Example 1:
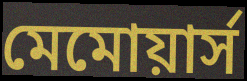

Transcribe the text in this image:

মেমোয়ার্স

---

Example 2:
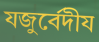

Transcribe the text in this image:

যজুর্বেদীয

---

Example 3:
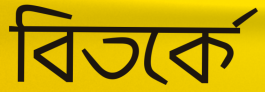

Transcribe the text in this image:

বিতর্কে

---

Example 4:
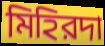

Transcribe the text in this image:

মিহিরদা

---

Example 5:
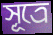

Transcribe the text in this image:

সূত্রে